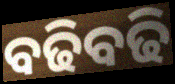
ବଢିବଢି